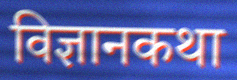
विज्ञानकथा